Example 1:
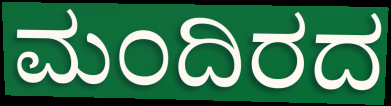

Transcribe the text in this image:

ಮಂದಿರದ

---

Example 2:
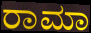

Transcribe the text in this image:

ರಾಮಾ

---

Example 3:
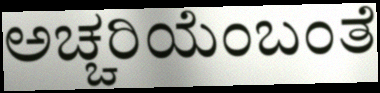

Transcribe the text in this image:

ಅಚ್ಚರಿಯೆಂಬಂತೆ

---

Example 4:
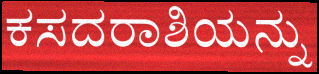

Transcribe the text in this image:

ಕಸದರಾಶಿಯನ್ನು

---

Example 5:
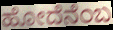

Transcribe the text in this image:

ಹೋದೆನೆಂಬ